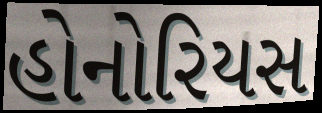
હોનોરિયસ